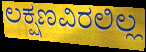
ಲಕ್ಷಣವಿರಲಿಲ್ಲ